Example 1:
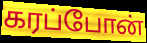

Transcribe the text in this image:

கரப்போன்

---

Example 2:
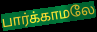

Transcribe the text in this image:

பார்க்காமலே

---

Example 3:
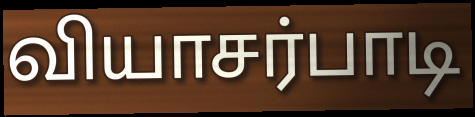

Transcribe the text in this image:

வியாசர்பாடி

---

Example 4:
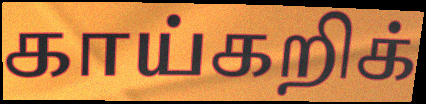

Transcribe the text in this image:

காய்கறிக்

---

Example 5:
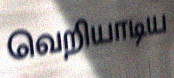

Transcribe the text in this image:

வெறியாடிய